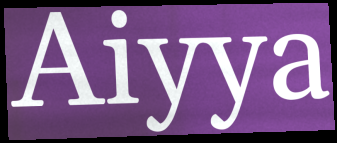
Aiyya